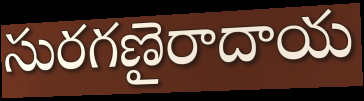
సురగణైరాదాయ